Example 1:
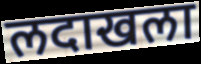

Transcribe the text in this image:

लदाखला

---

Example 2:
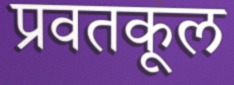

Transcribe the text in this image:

प्रवतकूल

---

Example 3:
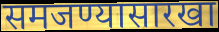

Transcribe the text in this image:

समजण्यासारखा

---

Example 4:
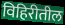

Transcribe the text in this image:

विहिरीतील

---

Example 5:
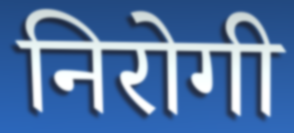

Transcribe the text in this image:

निरोगी